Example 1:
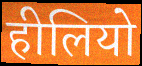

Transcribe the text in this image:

हीलियो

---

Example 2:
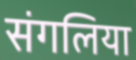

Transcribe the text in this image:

संगलिया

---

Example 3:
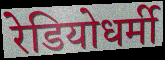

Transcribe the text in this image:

रेडियोधर्मी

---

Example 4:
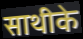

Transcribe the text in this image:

साथीके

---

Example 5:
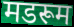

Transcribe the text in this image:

मडरूम